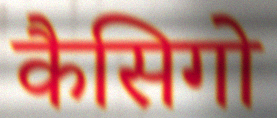
कैसिगो